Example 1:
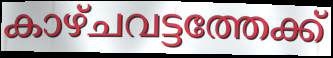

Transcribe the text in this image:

കാഴ്ചവട്ടത്തേക്ക്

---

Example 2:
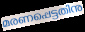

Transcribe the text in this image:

മരണപ്പെട്ടതിനു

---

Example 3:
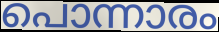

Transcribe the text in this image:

പൊന്നാരം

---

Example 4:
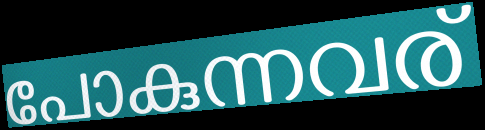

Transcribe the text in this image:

പോകുന്നവര്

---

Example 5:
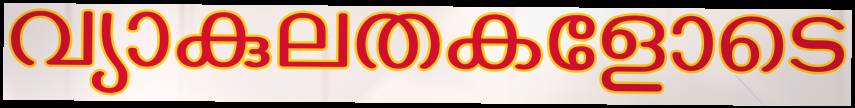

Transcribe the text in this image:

വ്യാകുലതകളോടെ